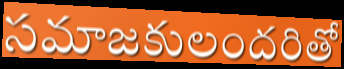
సమాజకులందరితో